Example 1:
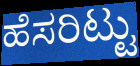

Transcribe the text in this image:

ಹೆಸರಿಟ್ಟು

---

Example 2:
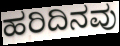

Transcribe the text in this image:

ಹರಿದಿನವು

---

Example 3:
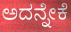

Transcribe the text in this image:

ಅದನ್ನೇಕೆ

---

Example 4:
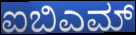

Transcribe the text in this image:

ಐಬಿಎಮ್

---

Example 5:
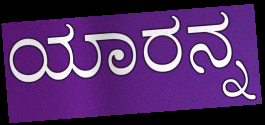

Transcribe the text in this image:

ಯಾರನ್ನ